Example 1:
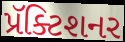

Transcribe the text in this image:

પ્રૅક્ટિશનર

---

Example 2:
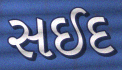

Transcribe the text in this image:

સઈદ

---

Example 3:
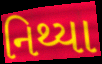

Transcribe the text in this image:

નિથ્યા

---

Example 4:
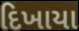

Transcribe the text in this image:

દિખાયા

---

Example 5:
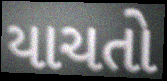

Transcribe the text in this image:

યાચતો